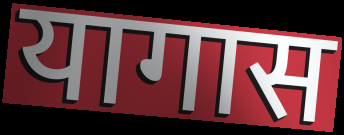
यागास